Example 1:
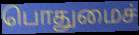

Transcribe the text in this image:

பொதுமைச்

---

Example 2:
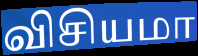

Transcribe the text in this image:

விசியமா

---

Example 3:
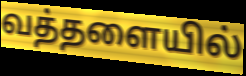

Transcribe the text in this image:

வத்தளையில்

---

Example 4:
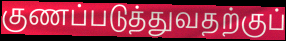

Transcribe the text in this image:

குணப்படுத்துவதற்குப்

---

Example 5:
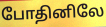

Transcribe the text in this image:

போதினிலே